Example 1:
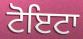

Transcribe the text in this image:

ਟੋਇਟਾ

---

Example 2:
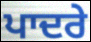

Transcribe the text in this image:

ਪਾਦਰੇ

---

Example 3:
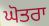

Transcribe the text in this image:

ਘੋਤਰਾ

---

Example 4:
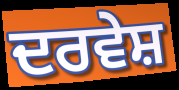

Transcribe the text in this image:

ਦਰਵੇਸ਼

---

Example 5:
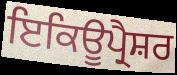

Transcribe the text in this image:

ਇਕਿਊਪ੍ਰੈਸ਼ਰ